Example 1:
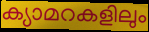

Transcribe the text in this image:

ക്യാമറകളിലും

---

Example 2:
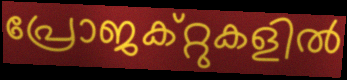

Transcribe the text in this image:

പ്രോജക്റ്റുകളിൽ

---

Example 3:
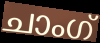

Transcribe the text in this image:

ചാംഗ്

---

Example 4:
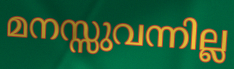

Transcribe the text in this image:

മനസ്സുവന്നില്ല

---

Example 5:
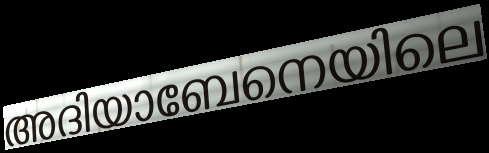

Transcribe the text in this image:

അദിയാബേനെയിലെ